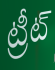
ట్రీట్